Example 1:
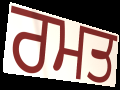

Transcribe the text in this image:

ਰਮਤ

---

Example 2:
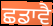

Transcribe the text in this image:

ਛਡਾਵੈ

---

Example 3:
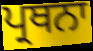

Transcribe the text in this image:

ਪ੍ਰਥਨਾ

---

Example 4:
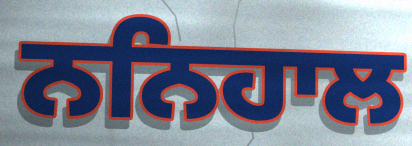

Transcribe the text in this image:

ਨਨਿਹਾਲ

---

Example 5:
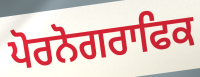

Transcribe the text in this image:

ਪੋਰਨੋਗਰਾਫਿਕ